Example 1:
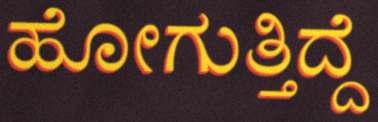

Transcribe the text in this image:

ಹೋಗುತ್ತಿದ್ದೆ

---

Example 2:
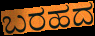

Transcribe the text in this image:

ಬರಹದ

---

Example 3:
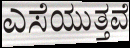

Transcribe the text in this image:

ಎಸೆಯುತ್ತವೆ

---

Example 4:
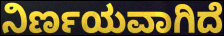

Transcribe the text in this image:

ನಿರ್ಣಯವಾಗಿದೆ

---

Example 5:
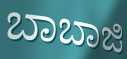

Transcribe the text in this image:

ಬಾಬಾಜಿ